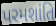
પરમશાંતિ